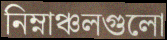
নিম্নাঞ্চলগুলো